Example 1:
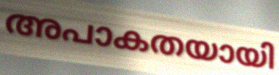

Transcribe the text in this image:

അപാകതയായി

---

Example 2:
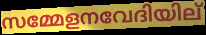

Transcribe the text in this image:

സമ്മേളനവേദിയില്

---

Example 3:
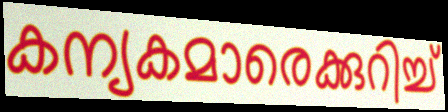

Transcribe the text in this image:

കന്യകമാരെക്കുറിച്ച്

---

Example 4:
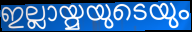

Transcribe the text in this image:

ഇല്ലായ്മയുടെയും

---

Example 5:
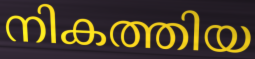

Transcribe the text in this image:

നികത്തിയ